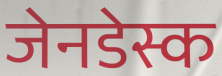
जेनडेस्क